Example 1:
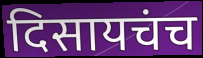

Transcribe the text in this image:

दिसायचंच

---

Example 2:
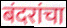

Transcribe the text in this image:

बंदरांचा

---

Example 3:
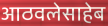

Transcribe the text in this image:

आठवलेसाहेब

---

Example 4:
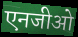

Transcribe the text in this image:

एनजीओ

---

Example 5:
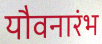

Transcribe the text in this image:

यौवनारंभ